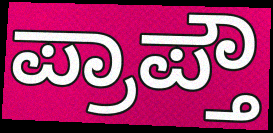
ಪ್ರಾಪ್ತೌ